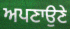
ਅਪਣਾਉਣੇ